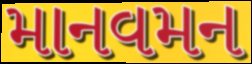
માનવમન